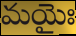
మయైః